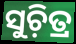
ସୁଚ଼ିତ୍ର